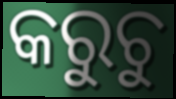
କରୁଚୁ